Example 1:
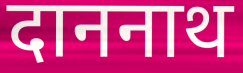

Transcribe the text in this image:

दाननाथ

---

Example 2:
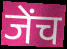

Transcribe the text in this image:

जेंच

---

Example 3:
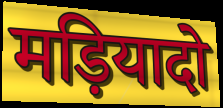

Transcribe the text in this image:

मड़ियादो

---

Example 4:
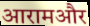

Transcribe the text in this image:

आरामऔर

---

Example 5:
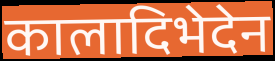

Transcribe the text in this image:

कालादिभेदेन